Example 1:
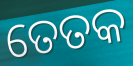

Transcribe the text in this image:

ତେତକ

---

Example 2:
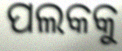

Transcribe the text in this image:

ପଲକକୁ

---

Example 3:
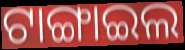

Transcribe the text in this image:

ଟାଙ୍ଗାଇଲ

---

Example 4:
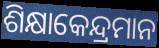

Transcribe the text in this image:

ଶିକ୍ଷାକେନ୍ଦ୍ରମାନ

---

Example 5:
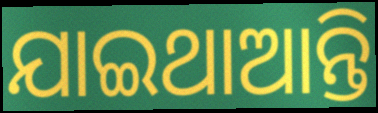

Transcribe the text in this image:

ଯାଇଥାଆନ୍ତି